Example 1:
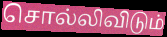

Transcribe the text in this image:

சொல்லிவிடும்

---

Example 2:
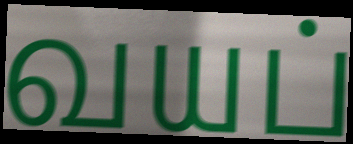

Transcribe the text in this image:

வயப்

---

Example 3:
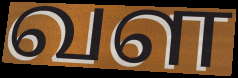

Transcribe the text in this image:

வள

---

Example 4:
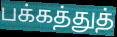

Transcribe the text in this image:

பக்கத்துத்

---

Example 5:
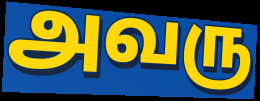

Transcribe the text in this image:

அவரு